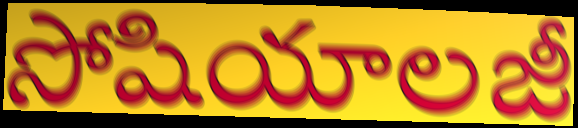
సోషియాలజీ